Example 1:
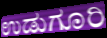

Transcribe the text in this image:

ಉಡುಗೂರಿ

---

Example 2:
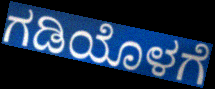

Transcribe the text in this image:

ಗಡಿಯೊಳಗೆ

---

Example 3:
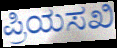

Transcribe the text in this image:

ಪ್ರಿಯಸಖಿ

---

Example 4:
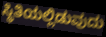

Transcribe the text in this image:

ಸ್ಥಿತಿಯಲ್ಲಿಡುವುದು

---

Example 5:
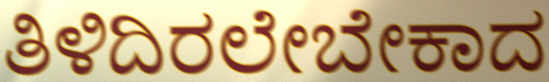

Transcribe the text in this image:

ತಿಳಿದಿರಲೇಬೇಕಾದ